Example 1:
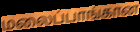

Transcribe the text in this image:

மலைப்பாங்கான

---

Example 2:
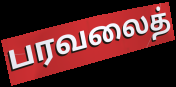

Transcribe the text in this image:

பரவலைத்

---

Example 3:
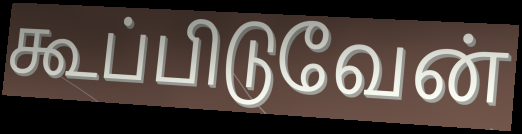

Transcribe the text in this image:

கூப்பிடுவேன்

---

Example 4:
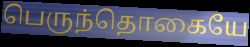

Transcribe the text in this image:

பெருந்தொகையே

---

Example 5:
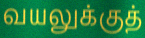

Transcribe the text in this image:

வயலுக்குத்